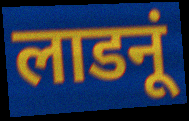
लाडनूं